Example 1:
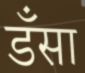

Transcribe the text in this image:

डँसा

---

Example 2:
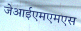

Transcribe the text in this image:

जेआईएमएमएस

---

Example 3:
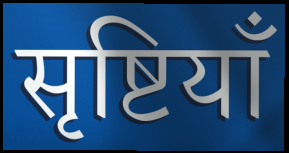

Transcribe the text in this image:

सृष्टियाँ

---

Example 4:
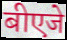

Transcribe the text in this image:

बीएजे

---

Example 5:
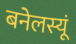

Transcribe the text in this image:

बनेलस्यूं